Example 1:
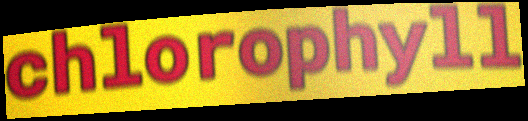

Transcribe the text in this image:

chlorophyll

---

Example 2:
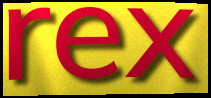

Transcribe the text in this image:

rex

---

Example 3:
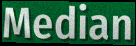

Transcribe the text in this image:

Median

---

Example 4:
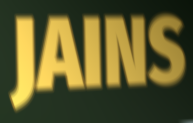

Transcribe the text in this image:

JAINS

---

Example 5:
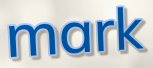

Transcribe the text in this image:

mark